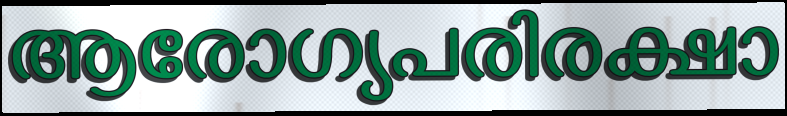
ആരോഗ്യപരിരക്ഷാ